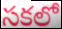
సకలో